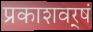
प्रकाशवर्षं